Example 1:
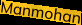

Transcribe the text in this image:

Manmohan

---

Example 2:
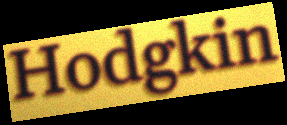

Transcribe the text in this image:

Hodgkin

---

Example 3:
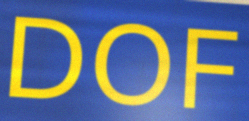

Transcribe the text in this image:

DOF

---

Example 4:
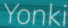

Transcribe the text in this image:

Yonki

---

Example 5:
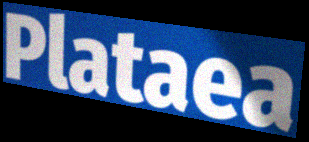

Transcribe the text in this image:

Plataea